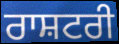
ਰਾਸ਼ਟਰੀ